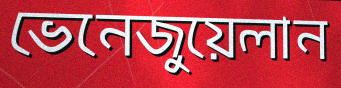
ভেনেজুয়েলান